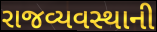
રાજવ્યવસ્થાની